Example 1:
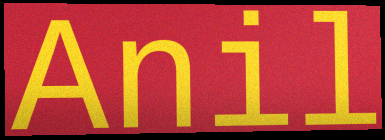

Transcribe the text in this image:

Anil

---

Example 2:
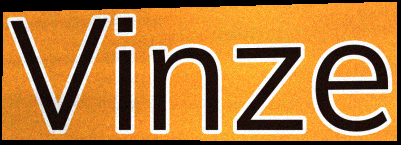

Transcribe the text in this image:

Vinze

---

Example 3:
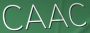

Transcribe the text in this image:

CAAC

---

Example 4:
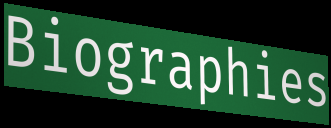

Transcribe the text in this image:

Biographies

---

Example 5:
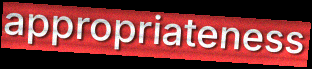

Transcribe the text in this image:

appropriateness